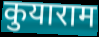
कुयाराम